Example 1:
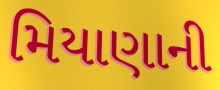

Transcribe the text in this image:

મિયાણાની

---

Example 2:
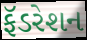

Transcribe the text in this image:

ફૅડરેશન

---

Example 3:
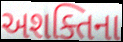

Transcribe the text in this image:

અશક્તિના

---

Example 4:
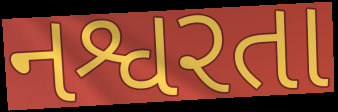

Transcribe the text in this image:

નશ્વરતા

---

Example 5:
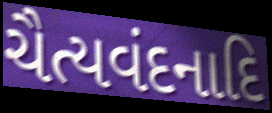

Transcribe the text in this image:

ચૈત્યવંદનાદિ